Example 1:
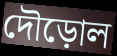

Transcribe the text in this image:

দৌড়োল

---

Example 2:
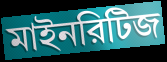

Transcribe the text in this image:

মাইনরিটিজ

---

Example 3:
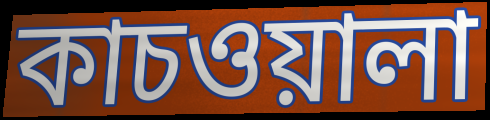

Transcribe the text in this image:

কাচওয়ালা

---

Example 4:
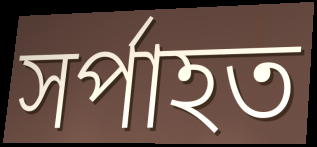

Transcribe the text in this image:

সর্পাহত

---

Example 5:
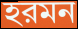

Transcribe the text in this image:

হরমন